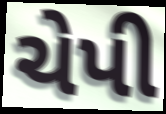
ચેપી